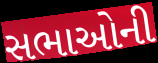
સભાઓની